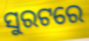
ସୁରଟରେ